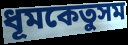
ধূমকেতুসম